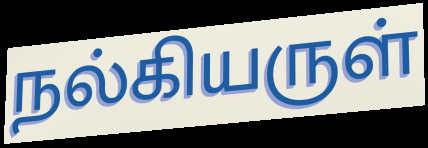
நல்கியருள்